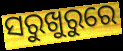
ସରୁଖୁରୁରେ